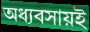
অধ্যবসায়ই